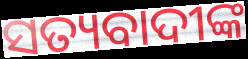
ସତ୍ୟବାଦୀଙ୍କ